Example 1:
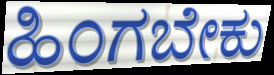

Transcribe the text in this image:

ಹಿಂಗಬೇಕು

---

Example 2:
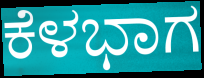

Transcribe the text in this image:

ಕೆಳಭಾಗ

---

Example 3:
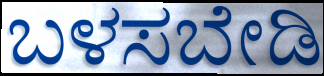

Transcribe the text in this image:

ಬಳಸಬೇಡಿ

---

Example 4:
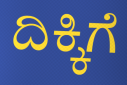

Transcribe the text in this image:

ದಿಕ್ಕಿಗೆ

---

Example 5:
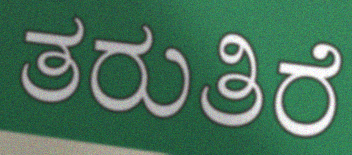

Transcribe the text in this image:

ತರುತಿರೆ